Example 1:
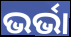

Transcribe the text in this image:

ଭର୍ଭା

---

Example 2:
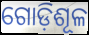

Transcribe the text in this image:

ଗୋଡ଼ିଶୂଳ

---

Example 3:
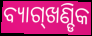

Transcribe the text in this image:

ବ୍ୟାଗ୍‌ଖଣ୍ଡିକ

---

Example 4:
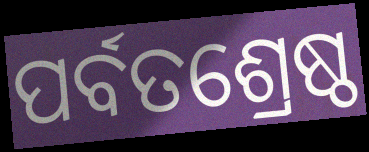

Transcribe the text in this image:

ପର୍ବତଶ୍ରେଷ୍ଠ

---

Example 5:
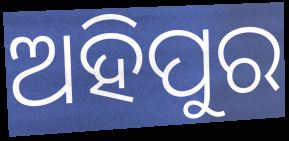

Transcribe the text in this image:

ଅହିପୁର